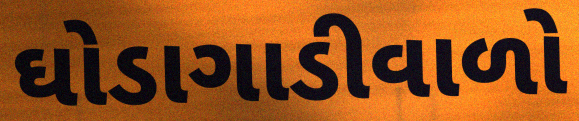
ઘોડાગાડીવાળો